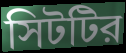
সিটটির